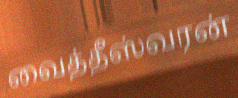
வைத்தீஸ்வரன்